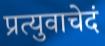
प्रत्युवाचेदं